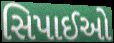
સિપાઈઓ